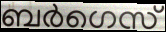
ബർഗെസ്